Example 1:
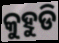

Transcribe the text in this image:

କୁହୁଡି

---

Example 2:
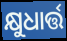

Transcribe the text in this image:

କ୍ଷୁଧାର୍ତ୍ତ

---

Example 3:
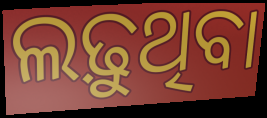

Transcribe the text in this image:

ଲଢ଼ୁଥିବା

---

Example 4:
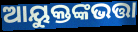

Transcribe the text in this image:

ଆୟୁକ୍ତଙ୍କଭତ୍ତା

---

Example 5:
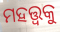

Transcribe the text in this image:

ମହତ୍ତ୍ଵକୁ